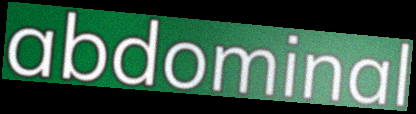
abdominal